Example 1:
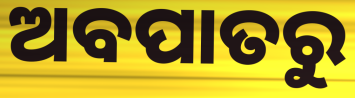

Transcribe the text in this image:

ଅବପାତରୁ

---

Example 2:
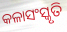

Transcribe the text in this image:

କଳାସଂସ୍କୃତି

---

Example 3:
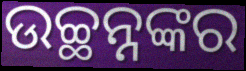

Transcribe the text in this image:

ଉଚ୍ଛନ୍ନଙ୍କର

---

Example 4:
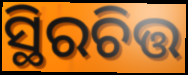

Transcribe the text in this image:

ସ୍ଥିରଚିତ୍ତ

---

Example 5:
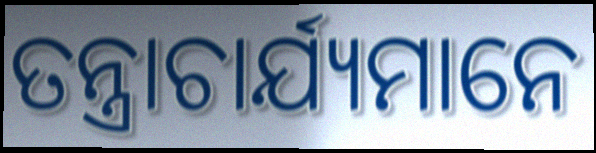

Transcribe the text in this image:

ତନ୍ତ୍ରାଚାର୍ଯ୍ୟମାନେ